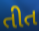
તીત